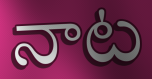
నాట